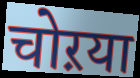
चोऱया